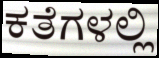
ಕತೆಗಳಲ್ಲಿ